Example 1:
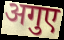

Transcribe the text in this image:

अगुए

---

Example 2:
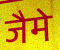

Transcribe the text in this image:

जैमे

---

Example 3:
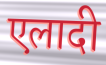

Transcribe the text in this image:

एलादी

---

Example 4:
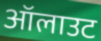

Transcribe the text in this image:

ऑलाउट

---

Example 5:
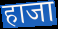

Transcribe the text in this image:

हाजा